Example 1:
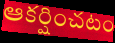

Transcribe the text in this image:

ఆకర్షించటం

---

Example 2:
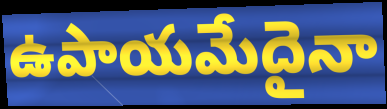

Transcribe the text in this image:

ఉపాయమేదైనా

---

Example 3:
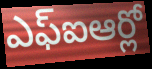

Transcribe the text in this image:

ఎఫ్ఐఆర్లో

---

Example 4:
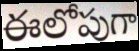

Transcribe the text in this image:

ఈలోపుగా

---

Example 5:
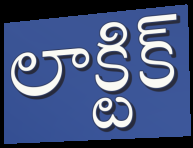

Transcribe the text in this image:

లాక్టిక్